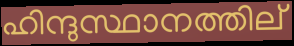
ഹിന്ദുസ്ഥാനത്തില്